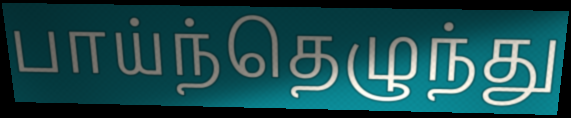
பாய்ந்தெழுந்து